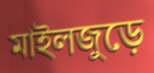
মাইলজুড়ে